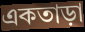
একতাড়া